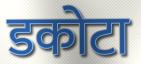
डकोटा